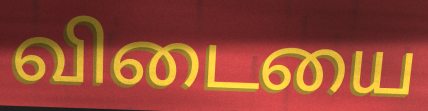
விடையை